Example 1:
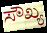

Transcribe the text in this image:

ಸೌಖ್ಯ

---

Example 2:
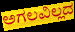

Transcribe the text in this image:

ಅಗಲವಿಲ್ಲದ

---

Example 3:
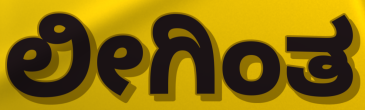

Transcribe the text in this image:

ಲೀಗಿಂತ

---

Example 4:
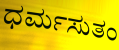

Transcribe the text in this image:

ಧರ್ಮಸುತಂ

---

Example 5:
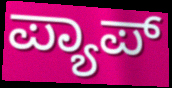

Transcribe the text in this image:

ಪ್ಯಾಪ್